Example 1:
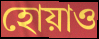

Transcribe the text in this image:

হোয়াও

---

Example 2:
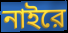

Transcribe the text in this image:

নাইরে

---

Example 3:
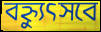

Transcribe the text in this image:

বহ্ন্যুৎসবে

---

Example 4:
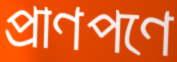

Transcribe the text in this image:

প্রাণপণে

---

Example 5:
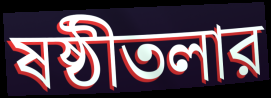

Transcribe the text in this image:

ষষ্ঠীতলার